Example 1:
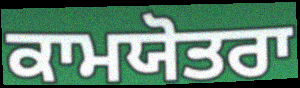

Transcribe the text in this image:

ਕਾਮਯੋਤਰਾ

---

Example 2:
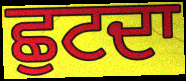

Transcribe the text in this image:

ਛੁਟਦਾ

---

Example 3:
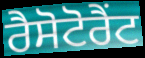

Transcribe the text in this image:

ਰੈਸੋਟੋਰੈਂਟ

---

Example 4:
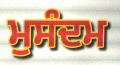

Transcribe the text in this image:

ਮੁਸੰਦਮ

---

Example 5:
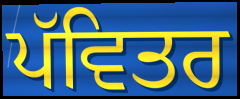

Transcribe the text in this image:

ਪੱਵਿਤਰ